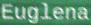
Euglena